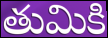
తుమికి